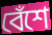
বেঁশে